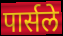
पार्सले